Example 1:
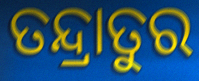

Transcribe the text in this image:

ତନ୍ଦ୍ରାତୁର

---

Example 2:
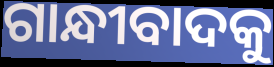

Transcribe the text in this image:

ଗାନ୍ଧୀବାଦକୁ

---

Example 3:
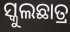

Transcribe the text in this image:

ସ୍କୁଲଛାତ୍ର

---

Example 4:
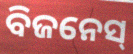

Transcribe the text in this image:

ବିଜନେସ୍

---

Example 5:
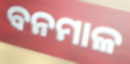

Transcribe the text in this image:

ବନମାଳ